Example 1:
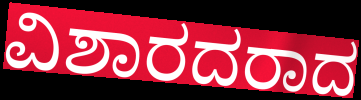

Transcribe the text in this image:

ವಿಶಾರದರಾದ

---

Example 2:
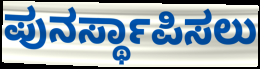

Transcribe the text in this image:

ಪುನರ್ಸ್ಥಾಪಿಸಲು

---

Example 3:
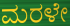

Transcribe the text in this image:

ಮರಳೇ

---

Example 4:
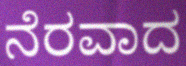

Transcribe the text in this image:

ನೆರವಾದ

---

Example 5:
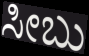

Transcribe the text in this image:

ಸೀಬು